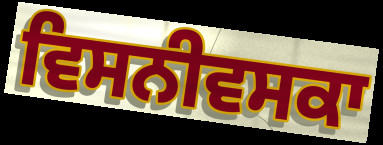
ਵਿਸਨੀਵਸਕਾ